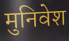
मुनिवेश